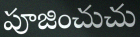
పూజించుచు